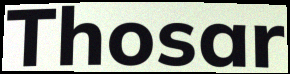
Thosar